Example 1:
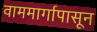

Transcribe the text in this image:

वाममार्गापासून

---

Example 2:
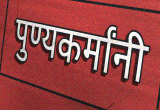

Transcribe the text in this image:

पुण्यकर्मांनी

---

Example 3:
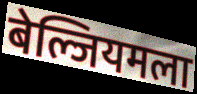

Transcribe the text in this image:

बेल्जियमला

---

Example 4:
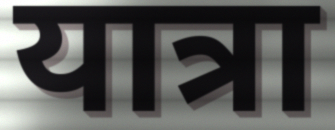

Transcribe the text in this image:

यात्रा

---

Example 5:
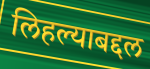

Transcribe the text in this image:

लिहल्याबद्दल